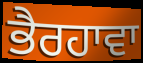
ਭੈਰਹਾਵਾ